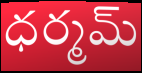
ధర్మమ్